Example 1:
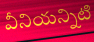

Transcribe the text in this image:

వీనియన్నిటి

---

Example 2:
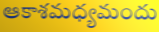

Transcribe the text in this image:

ఆకాశమధ్యమందు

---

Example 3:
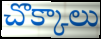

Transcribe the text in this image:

చొక్కాలు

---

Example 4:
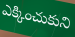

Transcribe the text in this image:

ఎక్కించుకుని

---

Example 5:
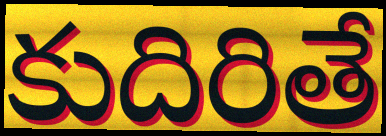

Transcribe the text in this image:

కుదిరితే